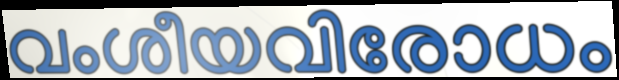
വംശീയവിരോധം